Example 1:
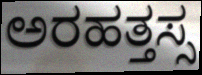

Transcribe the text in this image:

ಅರಹತ್ತಸ್ಸ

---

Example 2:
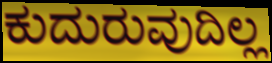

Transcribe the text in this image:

ಕುದುರುವುದಿಲ್ಲ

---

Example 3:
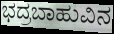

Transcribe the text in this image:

ಭದ್ರಬಾಹುವಿನ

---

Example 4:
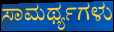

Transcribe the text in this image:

ಸಾಮರ್ಥ್ಯಗಳು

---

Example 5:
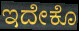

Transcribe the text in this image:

ಇದೇಕೊ